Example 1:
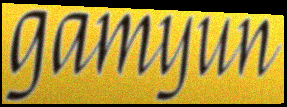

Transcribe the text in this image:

gamyun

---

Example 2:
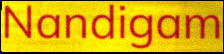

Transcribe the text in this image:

Nandigam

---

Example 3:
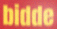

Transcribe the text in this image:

bidde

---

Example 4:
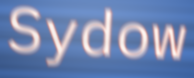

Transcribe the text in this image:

Sydow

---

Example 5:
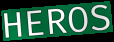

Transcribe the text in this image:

HEROS